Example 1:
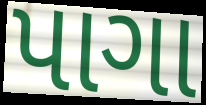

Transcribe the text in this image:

પાગા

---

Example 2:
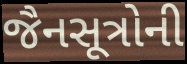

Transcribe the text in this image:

જૈનસૂત્રોની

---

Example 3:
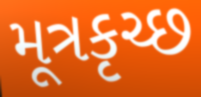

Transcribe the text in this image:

મૂત્રકૃચ્છ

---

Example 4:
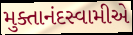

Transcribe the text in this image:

મુક્તાનંદસ્વામીએ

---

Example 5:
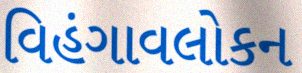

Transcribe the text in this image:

વિહંગાવલોકન